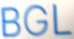
BGL